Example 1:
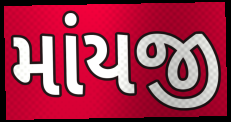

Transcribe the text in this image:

માંયજી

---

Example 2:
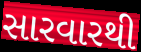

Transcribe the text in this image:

સારવારથી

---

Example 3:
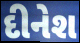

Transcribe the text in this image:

દીનેશ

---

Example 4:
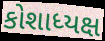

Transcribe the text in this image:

કોશાધ્યક્ષ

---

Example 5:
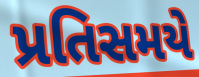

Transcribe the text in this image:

પ્રતિસમયે